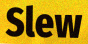
Slew